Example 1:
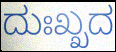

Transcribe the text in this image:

ದುಃಖ್ಖದ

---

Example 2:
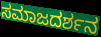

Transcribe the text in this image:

ಸಮಾಜದರ್ಶನ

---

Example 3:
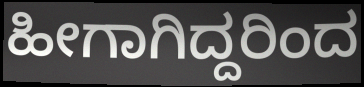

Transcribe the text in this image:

ಹೀಗಾಗಿದ್ದರಿಂದ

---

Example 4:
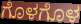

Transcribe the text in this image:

ಗೊಳಗೊಳ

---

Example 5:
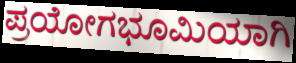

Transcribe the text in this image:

ಪ್ರಯೋಗಭೂಮಿಯಾಗಿ